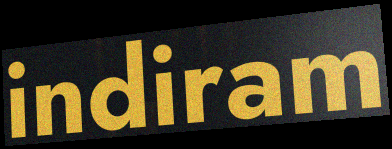
indiram